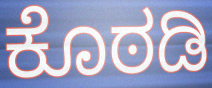
ಕೊಠಡಿ